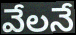
వేలనే